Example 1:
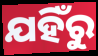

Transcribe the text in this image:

ଯହିଁରୁ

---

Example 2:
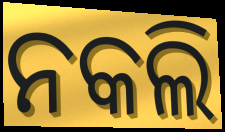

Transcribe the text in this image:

ନକଲି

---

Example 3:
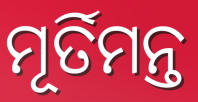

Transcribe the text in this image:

ମୂର୍ତିମନ୍ତ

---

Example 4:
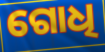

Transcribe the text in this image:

ଗୋଧି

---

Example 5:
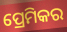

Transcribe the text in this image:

ପ୍ରେମିକର